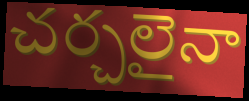
చర్చలైనా